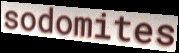
sodomites